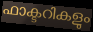
ഫാക്ടറികളും